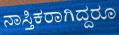
ನಾಸ್ತಿಕರಾಗಿದ್ದರೂ